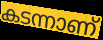
കടന്നാണ്